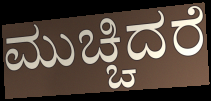
ಮುಚ್ಚಿದರೆ